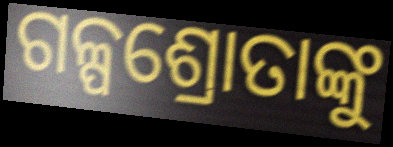
ଗଳ୍ପଶ୍ରୋତାଙ୍କୁ